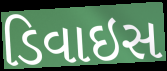
ડિવાઇસ